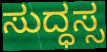
ಸುದ್ಧಸ್ಸ